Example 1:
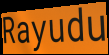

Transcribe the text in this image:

Rayudu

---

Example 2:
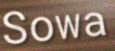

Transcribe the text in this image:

Sowa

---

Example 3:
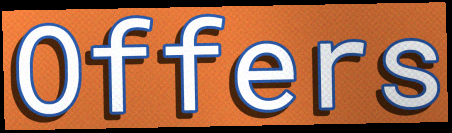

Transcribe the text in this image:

Offers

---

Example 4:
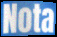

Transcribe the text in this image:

Nota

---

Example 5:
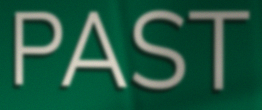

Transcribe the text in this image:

PAST